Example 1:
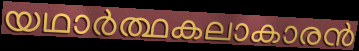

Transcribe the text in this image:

യഥാർത്ഥകലാകാരൻ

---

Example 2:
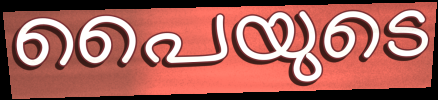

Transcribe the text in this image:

പൈയുടെ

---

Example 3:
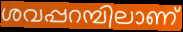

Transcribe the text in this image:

ശവപ്പറമ്പിലാണ്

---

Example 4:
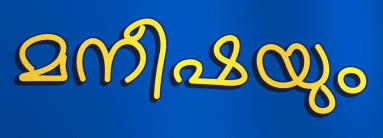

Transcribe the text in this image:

മനീഷയും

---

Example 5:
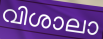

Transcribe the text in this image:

വിശാലാ